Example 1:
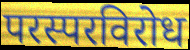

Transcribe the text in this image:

परस्परविरोध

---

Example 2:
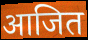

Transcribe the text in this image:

आजित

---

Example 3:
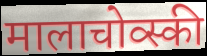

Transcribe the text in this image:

मालाचोव्स्की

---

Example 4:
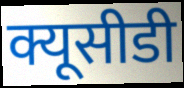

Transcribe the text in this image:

क्यूसीडी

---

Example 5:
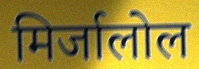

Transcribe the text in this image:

मिर्जालोल